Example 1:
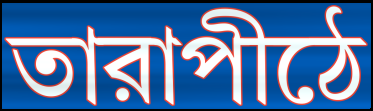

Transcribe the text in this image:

তারাপীঠে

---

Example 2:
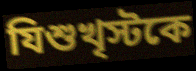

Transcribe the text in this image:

যিশুখৃস্টকে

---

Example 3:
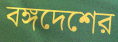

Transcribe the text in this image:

বঙ্গদেশের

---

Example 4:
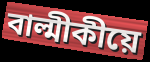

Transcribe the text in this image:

বাল্মীকীয়ে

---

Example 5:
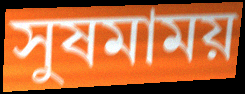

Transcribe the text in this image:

সুষমাময়